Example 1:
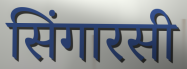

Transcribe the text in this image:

सिंगारसी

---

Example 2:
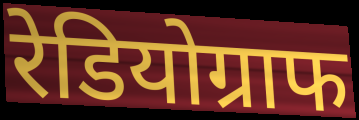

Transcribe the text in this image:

रेडियोग्राफ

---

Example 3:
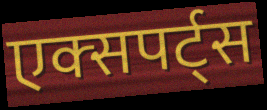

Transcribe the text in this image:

एक्‍सपर्ट्स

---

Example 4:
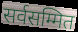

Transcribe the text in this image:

सर्वसम्मित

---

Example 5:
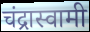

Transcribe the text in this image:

चंद्रास्वामी